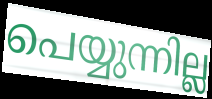
പെയ്യുന്നില്ല